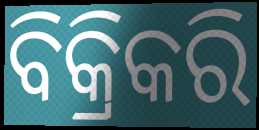
ବିକ୍ରିକରି